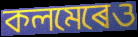
কলমেৰেও